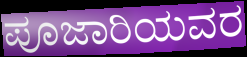
ಪೂಜಾರಿಯವರ